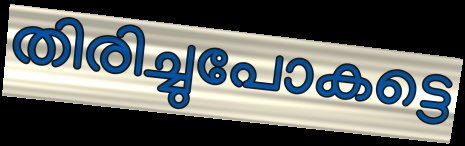
തിരിച്ചുപോകട്ടെ